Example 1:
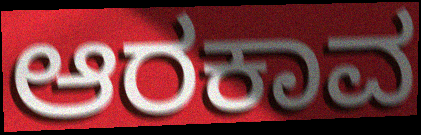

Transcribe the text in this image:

ಆರಕಾವ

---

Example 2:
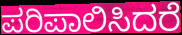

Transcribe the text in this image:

ಪರಿಪಾಲಿಸಿದರೆ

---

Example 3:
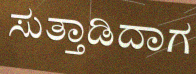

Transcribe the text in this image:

ಸುತ್ತಾಡಿದಾಗ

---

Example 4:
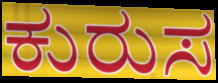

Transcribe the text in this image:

ಕುರುಸ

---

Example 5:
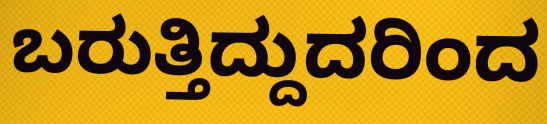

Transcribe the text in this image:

ಬರುತ್ತಿದ್ದುದರಿಂದ